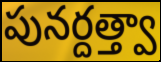
పునర్దత్త్వా